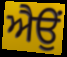
ਐਉਂ